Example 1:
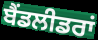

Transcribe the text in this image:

ਬੈਂਡਲੀਡਰਾਂ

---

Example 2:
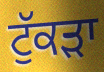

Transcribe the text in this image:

ਟੁੱਕੜਾ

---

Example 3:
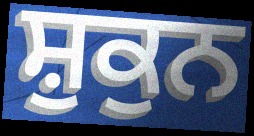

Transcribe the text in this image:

ਸ਼ੁਕੁਨ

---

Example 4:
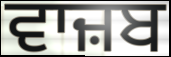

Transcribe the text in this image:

ਵਾਜ਼ਬ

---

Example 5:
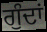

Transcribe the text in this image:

ਗੁੰਦਾਂ